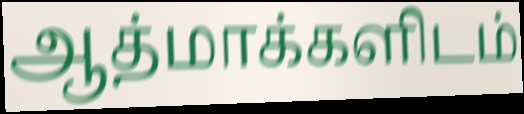
ஆத்மாக்களிடம்